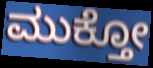
ಮುಕ್ತೋ